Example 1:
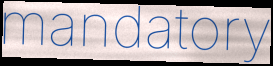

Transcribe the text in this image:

mandatory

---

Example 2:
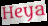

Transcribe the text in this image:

Heya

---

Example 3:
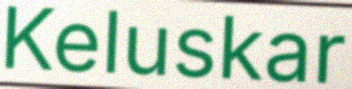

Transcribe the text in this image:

Keluskar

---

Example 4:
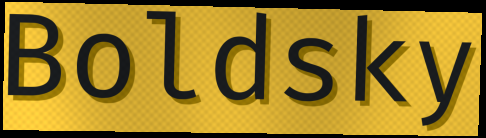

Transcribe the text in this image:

Boldsky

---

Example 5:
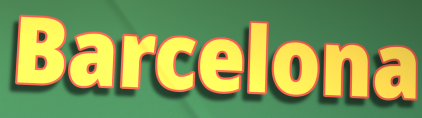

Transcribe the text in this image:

Barcelona